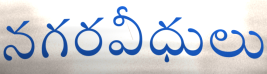
నగరవీధులు